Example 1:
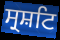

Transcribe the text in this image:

ਸ੍ਰਸ਼ਟਿ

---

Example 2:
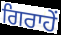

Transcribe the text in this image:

ਗਿਰਾਹੇਂ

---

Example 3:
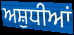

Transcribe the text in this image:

ਅਸ਼ੁਧੀਆਂ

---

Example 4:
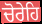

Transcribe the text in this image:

ਚੋਰੇਹਿ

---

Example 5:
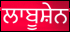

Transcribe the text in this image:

ਲਾਬੂਸ਼ੇਨ